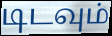
டிடவும்